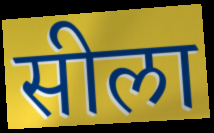
सीला